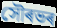
সৌৰভৰ